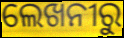
ଲେଖନୀରୁ